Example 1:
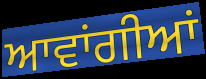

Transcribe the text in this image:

ਆਵਾਂਗੀਆਂ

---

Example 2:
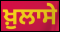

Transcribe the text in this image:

ਖ਼ੁਲਾਸੇ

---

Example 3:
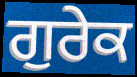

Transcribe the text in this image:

ਗੁਰੇਕ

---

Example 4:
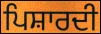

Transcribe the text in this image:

ਪਿਸ਼ਾਰਦੀ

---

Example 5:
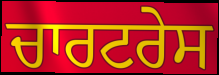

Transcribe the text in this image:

ਚਾਰਟਰੇਸ